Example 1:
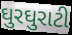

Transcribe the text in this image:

ઘુરઘુરાટી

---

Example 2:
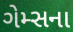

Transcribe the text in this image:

ગેમ્સના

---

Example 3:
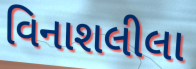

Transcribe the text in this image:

વિનાશલીલા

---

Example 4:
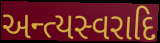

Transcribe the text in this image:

અન્ત્યસ્વરાદિ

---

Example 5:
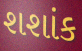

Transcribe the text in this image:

શશાંક